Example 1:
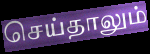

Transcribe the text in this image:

செய்தாலும்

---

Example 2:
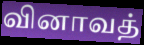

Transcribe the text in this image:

வினாவத்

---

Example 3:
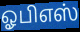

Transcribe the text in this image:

ஓபிஎஸ்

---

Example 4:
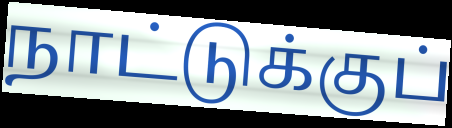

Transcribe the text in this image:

நாட்டுக்குப்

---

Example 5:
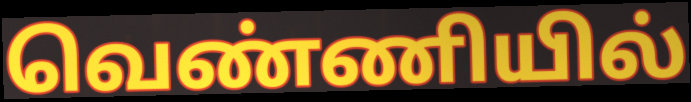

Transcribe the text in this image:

வெண்ணியில்